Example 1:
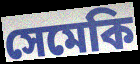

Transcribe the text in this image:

সেমেকি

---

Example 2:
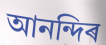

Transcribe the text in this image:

আনন্দিৰ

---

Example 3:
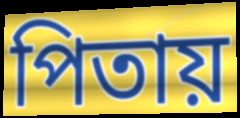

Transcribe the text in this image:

পিতায়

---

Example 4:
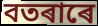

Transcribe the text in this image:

বতৰাৰে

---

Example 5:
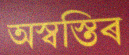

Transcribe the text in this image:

অস্বস্তিৰ